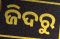
ଜିଦରୁ